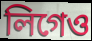
লিগেও